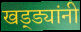
खड्ड्यांनी